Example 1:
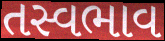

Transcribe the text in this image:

તસ્વભાવ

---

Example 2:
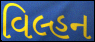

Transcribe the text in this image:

વિલ્હન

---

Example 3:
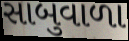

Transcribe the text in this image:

સાબુવાળા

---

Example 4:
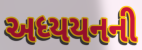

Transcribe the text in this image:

અધ્યયનની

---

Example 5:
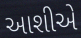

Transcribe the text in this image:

આશીએ